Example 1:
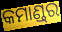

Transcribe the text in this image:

କମାଣ୍ଡ୍‌ର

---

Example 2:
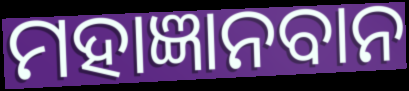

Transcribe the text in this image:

ମହାଜ୍ଞାନବାନ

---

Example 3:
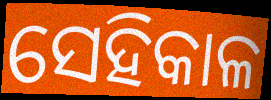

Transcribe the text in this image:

ସେହିକାଳ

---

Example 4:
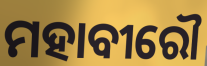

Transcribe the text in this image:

ମହାବୀରୌ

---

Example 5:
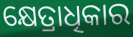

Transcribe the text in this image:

କ୍ଷେତ୍ରାଧିକାର